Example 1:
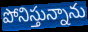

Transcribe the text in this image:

పోనిస్తున్నాను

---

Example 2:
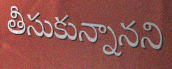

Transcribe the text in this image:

తీసుకున్నానని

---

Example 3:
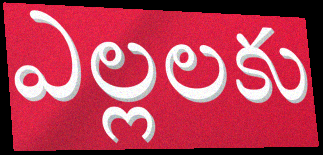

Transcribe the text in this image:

ఎల్లలకు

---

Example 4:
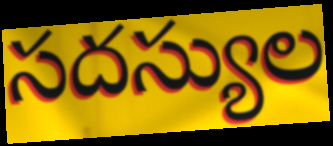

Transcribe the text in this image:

సదస్యుల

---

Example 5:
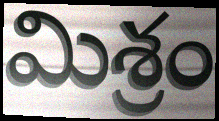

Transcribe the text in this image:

మిశ్రం